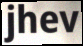
jhev